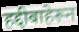
हद्दीबाहेरून